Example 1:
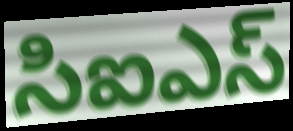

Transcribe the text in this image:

సిఐఎస్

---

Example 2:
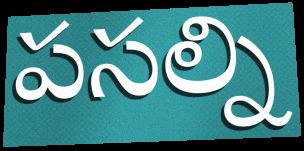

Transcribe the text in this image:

పసల్ని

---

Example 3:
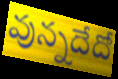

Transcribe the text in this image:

వున్నదేదో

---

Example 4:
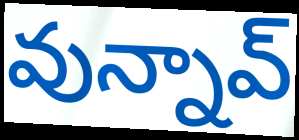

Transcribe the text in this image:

వున్నావ్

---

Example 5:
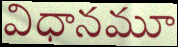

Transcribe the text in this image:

విధానమూ